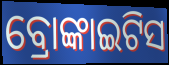
ବ୍ରୋଙ୍କାଇଟିସ